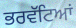
ਭਰਵੱਟਿਆਂ